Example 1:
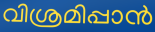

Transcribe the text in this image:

വിശ്രമിപ്പാൻ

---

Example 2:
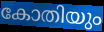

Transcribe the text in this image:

കോതിയും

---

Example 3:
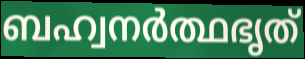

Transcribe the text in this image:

ബഹ്വനർത്ഥഭൃത്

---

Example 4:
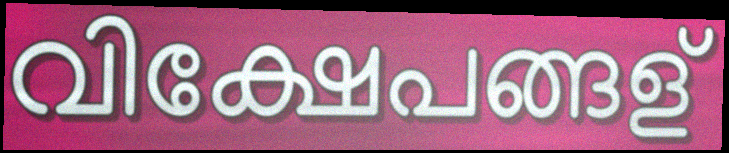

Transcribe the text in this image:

വിക്ഷേപങ്ങള്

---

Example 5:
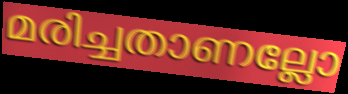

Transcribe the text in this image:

മരിച്ചതാണല്ലോ